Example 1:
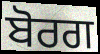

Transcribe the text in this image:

ਬੋਰਗ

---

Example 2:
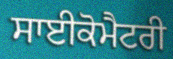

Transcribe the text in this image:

ਸਾਈਕੋਮੈਟਰੀ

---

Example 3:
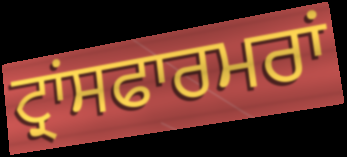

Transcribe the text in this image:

ਟ੍ਰਾਂਸਫਾਰਮਰਾਂ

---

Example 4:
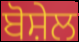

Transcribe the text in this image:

ਬੋਸ਼ੇਲ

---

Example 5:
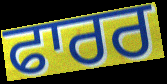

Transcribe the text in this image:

ਫਾਰਰ